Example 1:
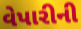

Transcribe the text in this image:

વેપારીની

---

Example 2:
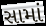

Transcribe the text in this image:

સામાં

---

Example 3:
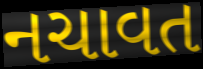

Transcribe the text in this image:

નચાવત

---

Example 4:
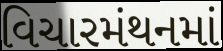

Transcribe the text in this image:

વિચારમંથનમાં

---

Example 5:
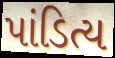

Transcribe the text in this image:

પાંડિત્ય